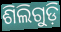
ଶିଲିଗୁଡ଼ି